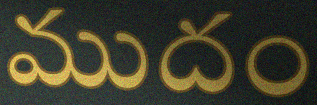
ముదం